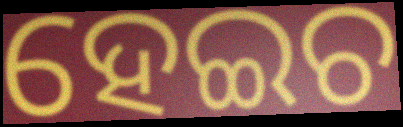
ହେଇଚ